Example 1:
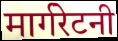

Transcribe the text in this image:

मार्गरेटनी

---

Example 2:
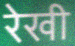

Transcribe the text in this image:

रेखी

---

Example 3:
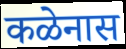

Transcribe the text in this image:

कळेनास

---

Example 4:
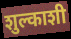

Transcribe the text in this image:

शुल्काशी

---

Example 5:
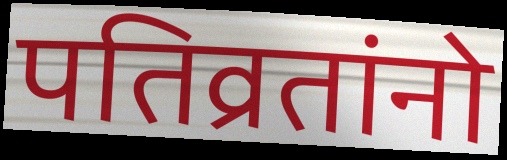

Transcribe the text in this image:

पतिव्रतांनो